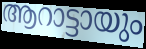
ആറാട്ടായും